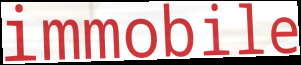
immobile